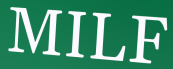
MILF